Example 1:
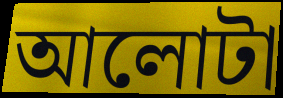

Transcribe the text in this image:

আলোটা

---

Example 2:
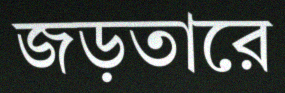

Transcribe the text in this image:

জড়তারে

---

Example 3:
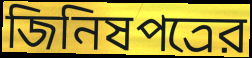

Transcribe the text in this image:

জিনিষপত্রের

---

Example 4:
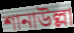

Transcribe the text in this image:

শানাউল্লা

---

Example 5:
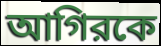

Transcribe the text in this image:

আগিরকে